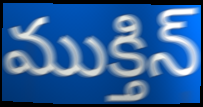
ముక్తిన్